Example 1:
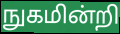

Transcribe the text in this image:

நுகமின்றி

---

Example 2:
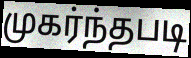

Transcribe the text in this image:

முகர்ந்தபடி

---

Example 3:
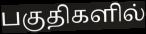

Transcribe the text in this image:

பகுதிகளில்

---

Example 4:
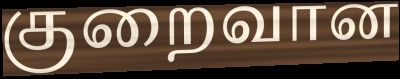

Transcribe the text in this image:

குறைவான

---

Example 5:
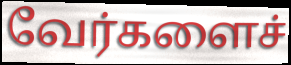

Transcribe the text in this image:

வேர்களைச்